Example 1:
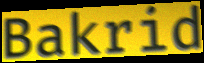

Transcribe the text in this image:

Bakrid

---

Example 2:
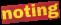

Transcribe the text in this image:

noting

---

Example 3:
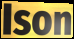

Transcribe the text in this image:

Ison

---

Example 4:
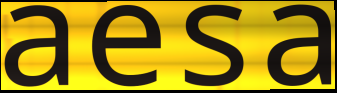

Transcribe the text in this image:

aesa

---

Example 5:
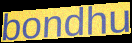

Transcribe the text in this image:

bondhu